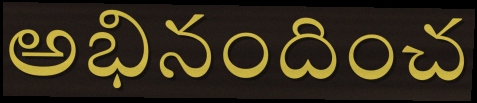
అభినందించ